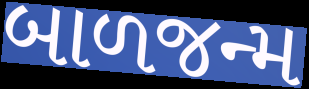
બાળજન્મ